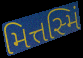
મિત્તસ્મિં